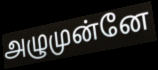
அழுமுன்னே